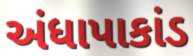
અંધાપાકાંડ